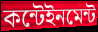
কন্টেইনমেন্ট